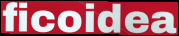
ficoidea